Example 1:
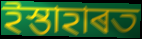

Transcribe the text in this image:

ইস্তাহাৰত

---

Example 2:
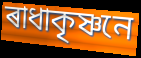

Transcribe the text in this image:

ৰাধাকৃষ্ণনে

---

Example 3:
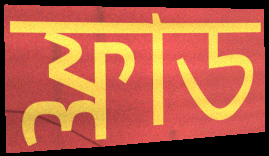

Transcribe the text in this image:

ফ্লাড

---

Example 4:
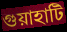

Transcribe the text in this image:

গুয়াহাটি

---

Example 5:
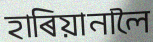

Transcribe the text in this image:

হাৰিয়ানালৈ